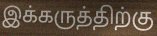
இக்கருத்திற்கு